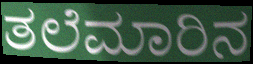
ತಲೆಮಾರಿನ